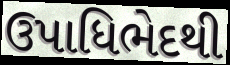
ઉપાધિભેદથી